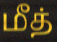
மீத்